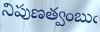
నిపుణత్వంబుఁ